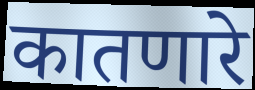
कातणारे